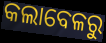
କଲାବେଳରୁ